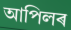
আপিলৰ